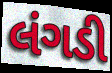
લંગડી